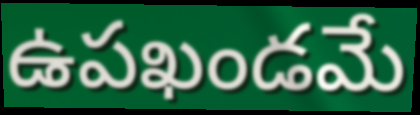
ఉపఖండమే